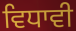
ਵਿਧਾਵੀ